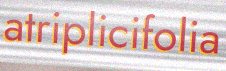
atriplicifolia